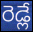
రెడ్లే